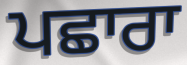
ਪਛਾਰਾ